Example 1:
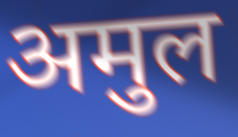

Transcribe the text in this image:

अमुल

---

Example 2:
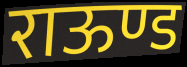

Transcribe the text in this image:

राऊण्ड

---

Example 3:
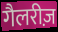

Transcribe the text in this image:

गैलरीज़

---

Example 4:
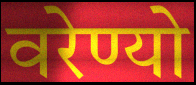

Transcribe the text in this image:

वरेण्यो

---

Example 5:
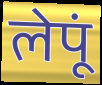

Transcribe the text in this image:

लेपूं